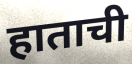
हाताची